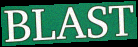
BLAST